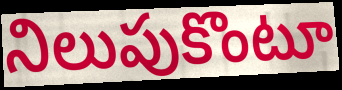
నిలుపుకొంటూ